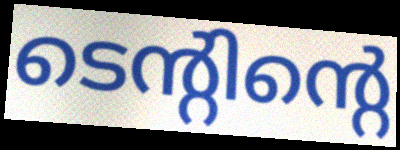
ടെന്റിന്റെ